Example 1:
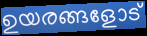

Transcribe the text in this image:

ഉയരങ്ങളോട്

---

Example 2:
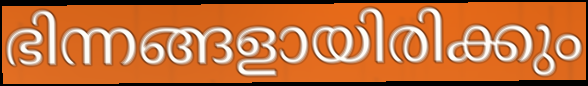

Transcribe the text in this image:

ഭിന്നങ്ങളായിരിക്കും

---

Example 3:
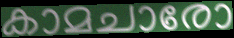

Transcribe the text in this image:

കാമചാരോ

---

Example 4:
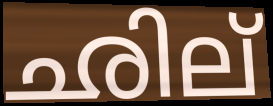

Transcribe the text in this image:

ഛില്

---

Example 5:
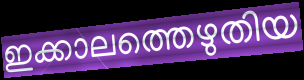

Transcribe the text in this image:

ഇക്കാലത്തെഴുതിയ